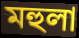
মহুলা